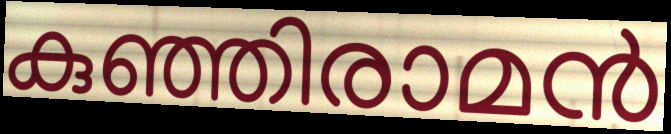
കുഞ്ഞിരാമൻ